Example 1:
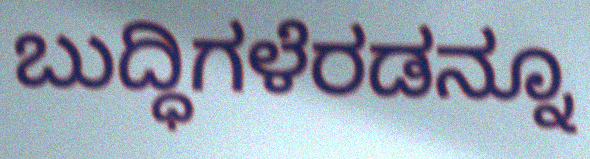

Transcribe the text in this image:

ಬುದ್ಧಿಗಳೆರಡನ್ನೂ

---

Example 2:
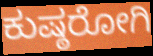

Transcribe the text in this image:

ಕುಷ್ಠರೋಗಿ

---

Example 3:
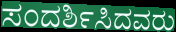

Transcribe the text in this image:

ಸಂದರ್ಶಿಸಿದವರು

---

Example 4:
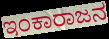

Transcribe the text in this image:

ಇಂಕಾರಾಜನ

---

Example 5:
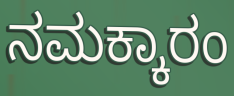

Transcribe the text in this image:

ನಮಕ್ಕಾರಂ